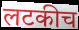
लटकीच